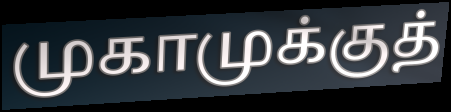
முகாமுக்குத்